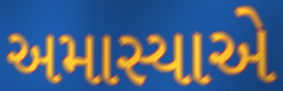
અમાસ્યાએ